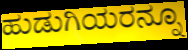
ಹುಡುಗಿಯರನ್ನೂ